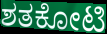
ಶತಕೋಟಿ